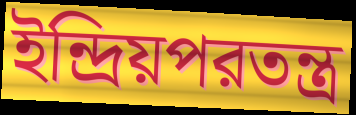
ইন্দ্রিয়পরতন্ত্র